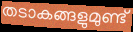
തടാകങ്ങളുമുണ്ട്